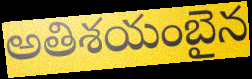
అతిశయంబైన